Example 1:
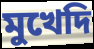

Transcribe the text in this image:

মুখেদি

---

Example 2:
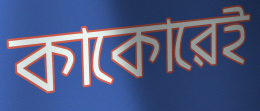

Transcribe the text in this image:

কাকোৱেই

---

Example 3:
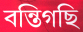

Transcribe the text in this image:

বন্তিগছি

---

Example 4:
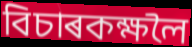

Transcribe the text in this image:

বিচাৰকক্ষলৈ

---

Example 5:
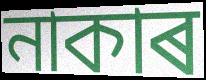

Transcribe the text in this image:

নাকাৰ